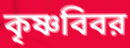
কৃষ্ণবিবর